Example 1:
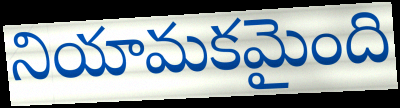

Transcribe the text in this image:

నియామకమైంది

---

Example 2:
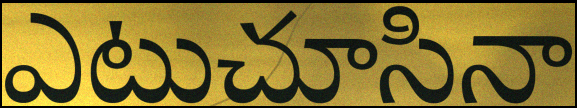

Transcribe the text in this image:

ఎటుచూసినా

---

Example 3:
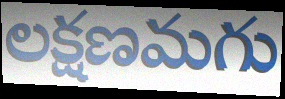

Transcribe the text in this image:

లక్షణమగు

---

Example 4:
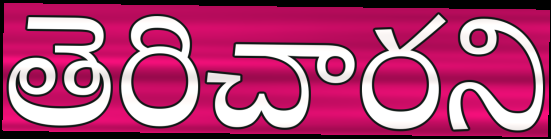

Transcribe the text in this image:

తెరిచారని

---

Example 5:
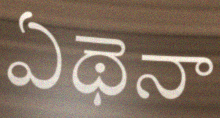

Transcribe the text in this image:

ఏథెనా